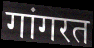
गांगरत